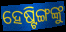
ହେଷ୍ଟିଙ୍ଗଙ୍କୁ